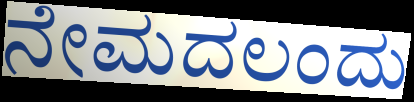
ನೇಮದಲಂದು